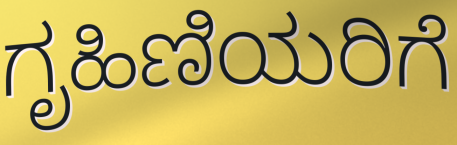
ಗೃಹಿಣಿಯರಿಗೆ